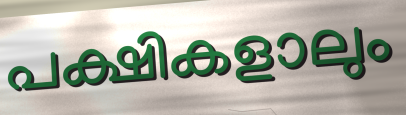
പക്ഷികളാലും